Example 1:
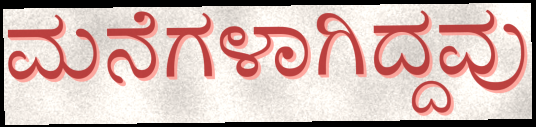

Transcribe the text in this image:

ಮನೆಗಳಾಗಿದ್ದವು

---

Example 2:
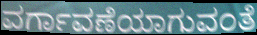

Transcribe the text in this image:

ವರ್ಗಾವಣೆಯಾಗುವಂತೆ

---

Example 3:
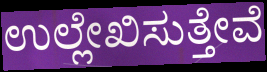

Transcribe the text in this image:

ಉಲ್ಲೇಖಿಸುತ್ತೇವೆ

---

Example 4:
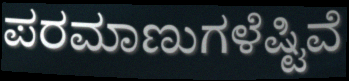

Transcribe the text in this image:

ಪರಮಾಣುಗಳೆಷ್ಟಿವೆ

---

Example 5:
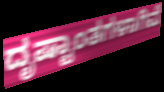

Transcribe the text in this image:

ದೃಷ್ಟಾಂತಗಳಾಗಿವೆ